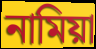
নামিয়া